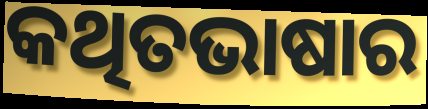
କଥିତଭାଷାର